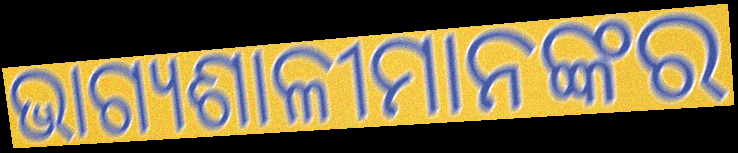
ଭାଗ୍ୟଶାଳୀମାନଙ୍କର